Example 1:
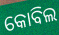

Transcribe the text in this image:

କୋବିଲ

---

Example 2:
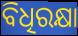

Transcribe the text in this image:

ବିଧିରକ୍ଷା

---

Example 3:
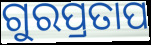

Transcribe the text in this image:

ଗୁରପ୍ରତାପ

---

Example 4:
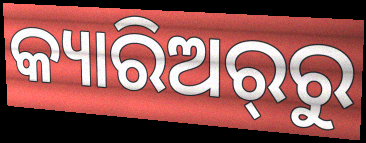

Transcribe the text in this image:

କ୍ୟାରିଅର୍‌ରୁ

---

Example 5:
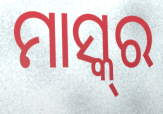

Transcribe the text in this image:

ମାସ୍କ୍‌ର